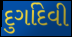
દુર્ગાદેવી